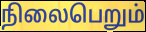
நிலைபெறும்